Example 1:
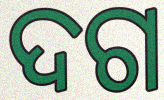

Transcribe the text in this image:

ଦଗ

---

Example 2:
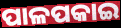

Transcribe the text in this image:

ପାଳପକାଇ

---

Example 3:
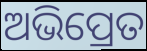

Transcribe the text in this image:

ଅଭିପ୍ରେତ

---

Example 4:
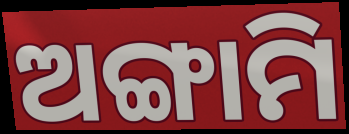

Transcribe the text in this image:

ଅଙ୍ଗାମି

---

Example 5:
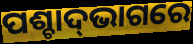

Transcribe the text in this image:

ପଶ୍ଚାଦ୍‌ଭାଗରେ